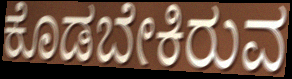
ಕೊಡಬೇಕಿರುವ